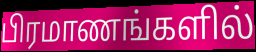
பிரமாணங்களில்